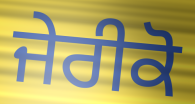
ਜੇਰੀਕੋ